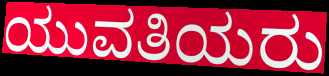
ಯುವತಿಯರು